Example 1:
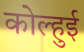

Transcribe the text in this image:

कोल्हुई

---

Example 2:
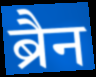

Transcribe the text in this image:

ब्रैन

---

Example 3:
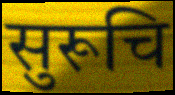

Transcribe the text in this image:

सुरूचि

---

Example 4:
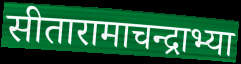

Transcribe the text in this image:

सीतारामाचन्द्राभ्या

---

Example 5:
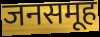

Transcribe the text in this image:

जनसमूह